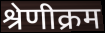
श्रेणीक्रम